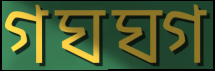
গঘঘগ